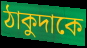
ঠাকুদাকে